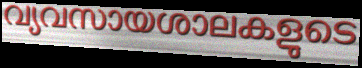
വ്യവസായശാലകളുടെ